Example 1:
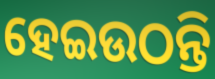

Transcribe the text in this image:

ହେଇଉଠନ୍ତି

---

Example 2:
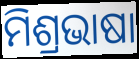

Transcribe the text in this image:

ମିଶ୍ରଭାଷା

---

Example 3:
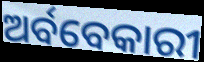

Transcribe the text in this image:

ଅର୍ବବେକାରୀ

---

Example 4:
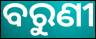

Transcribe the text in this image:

ବରୁଣୀ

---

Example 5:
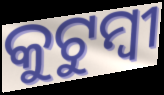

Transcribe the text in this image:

କୁଟୁମ୍ୱୀ